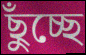
ছুঁচ্ছে